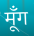
मूँग